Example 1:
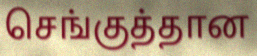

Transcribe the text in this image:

செங்குத்தான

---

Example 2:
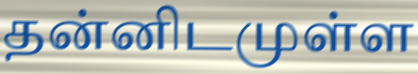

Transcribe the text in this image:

தன்னிடமுள்ள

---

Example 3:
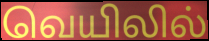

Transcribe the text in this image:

வெயிலில்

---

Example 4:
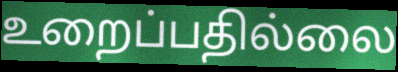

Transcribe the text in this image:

உறைப்பதில்லை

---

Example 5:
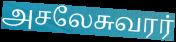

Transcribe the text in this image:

அசலேசுவரர்